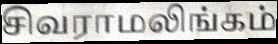
சிவராமலிங்கம்